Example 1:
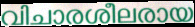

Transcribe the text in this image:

വിചാരശീലരായ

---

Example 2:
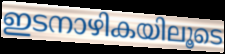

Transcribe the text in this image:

ഇടനാഴികയിലൂടെ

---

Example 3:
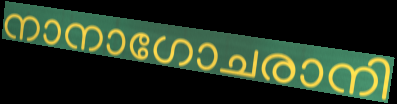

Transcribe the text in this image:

നാനാഗോചരാനി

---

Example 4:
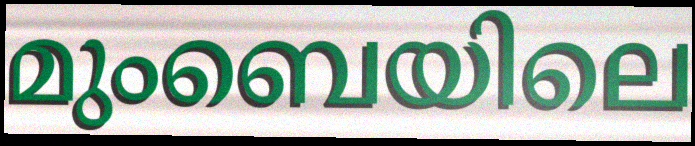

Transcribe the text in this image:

മുംബെയിലെ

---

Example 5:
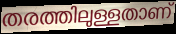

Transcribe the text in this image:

തരത്തിലുള്ളതാണ്